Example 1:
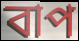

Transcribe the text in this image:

বাপ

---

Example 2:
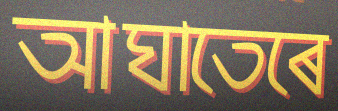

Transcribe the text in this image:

আঘাতেৰে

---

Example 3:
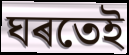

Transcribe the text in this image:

ঘৰতেই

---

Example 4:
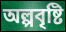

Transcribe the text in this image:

অল্পবৃষ্টি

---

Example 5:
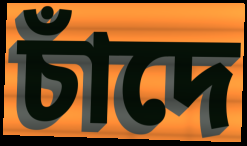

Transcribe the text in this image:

চাঁদে